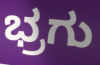
ಭ್ರಗು